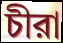
চীরা